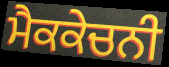
ਮੈਕਕੇਚਨੀ